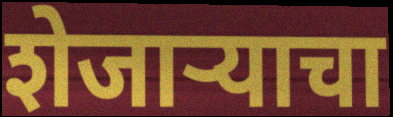
शेजार्‍याचा